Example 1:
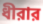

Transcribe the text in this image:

ধীরার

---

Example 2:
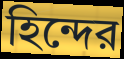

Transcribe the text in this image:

হিন্দের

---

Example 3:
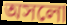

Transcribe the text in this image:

অসলো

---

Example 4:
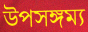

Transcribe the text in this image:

উপসঙ্গম্য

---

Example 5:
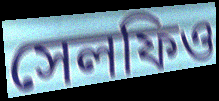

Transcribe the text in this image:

সেলফিও